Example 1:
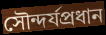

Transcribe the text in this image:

সৌন্দর্যপ্রধান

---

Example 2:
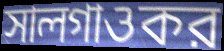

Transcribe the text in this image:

সালগাওকর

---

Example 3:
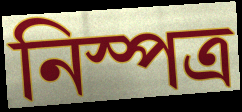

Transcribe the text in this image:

নিস্পত্র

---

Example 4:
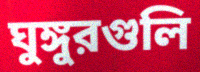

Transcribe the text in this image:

ঘুঙ্গুরগুলি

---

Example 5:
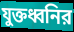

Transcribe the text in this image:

যুক্তধ্বনির